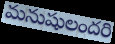
మనుషులందరి